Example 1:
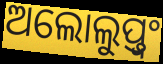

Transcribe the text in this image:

ଅଲୋଲୁପ୍ତ୍ୱଂ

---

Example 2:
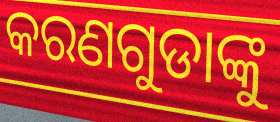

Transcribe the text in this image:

କରଣଗୁଡାଙ୍କୁ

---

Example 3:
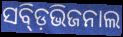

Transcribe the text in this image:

ସବ୍ଡ଼ିଭିଜନାଲ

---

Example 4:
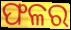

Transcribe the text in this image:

ଫଳର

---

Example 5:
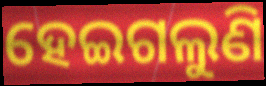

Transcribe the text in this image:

ହେଇଗଲୁଣି